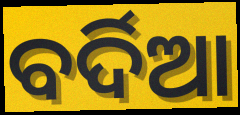
ବର୍ଦିଆ